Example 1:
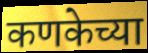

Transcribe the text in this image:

कणकेच्या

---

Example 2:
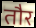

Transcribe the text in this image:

तौर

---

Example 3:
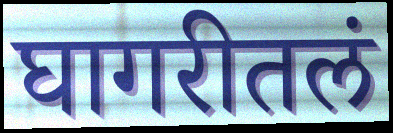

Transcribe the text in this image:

घागरीतलं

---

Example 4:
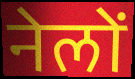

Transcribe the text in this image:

नेलों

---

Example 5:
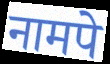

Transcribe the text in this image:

नामपे